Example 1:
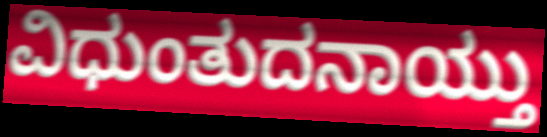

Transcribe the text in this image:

ವಿಧುಂತುದನಾಯ್ತು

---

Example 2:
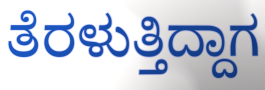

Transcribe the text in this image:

ತೆರಳುತ್ತಿದ್ದಾಗ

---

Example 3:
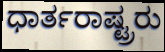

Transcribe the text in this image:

ಧಾರ್ತರಾಷ್ಟ್ರರು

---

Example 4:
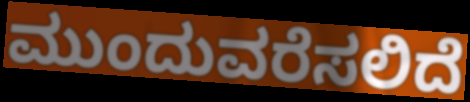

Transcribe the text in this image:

ಮುಂದುವರೆಸಲಿದೆ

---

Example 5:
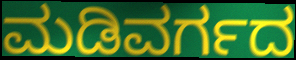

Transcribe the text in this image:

ಮಡಿವರ್ಗದ